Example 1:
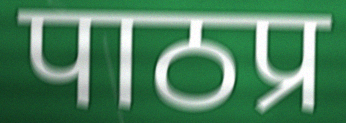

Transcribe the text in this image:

पाठप्र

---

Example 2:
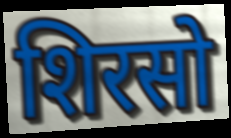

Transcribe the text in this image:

शिरसो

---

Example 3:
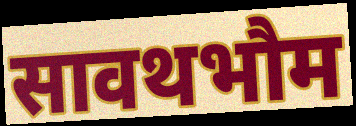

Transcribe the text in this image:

सावथभौम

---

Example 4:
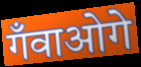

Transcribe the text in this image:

गँवाओगे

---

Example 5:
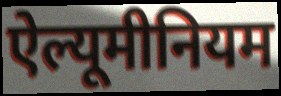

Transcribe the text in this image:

ऐल्यूमीनियम